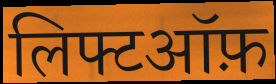
लिफ्टऑफ़